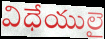
విధేయులై